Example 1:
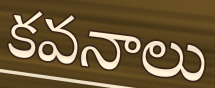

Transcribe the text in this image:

కవనాలు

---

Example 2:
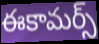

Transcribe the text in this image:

ఈకామర్స్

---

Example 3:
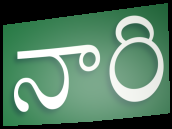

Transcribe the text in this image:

నారి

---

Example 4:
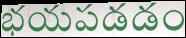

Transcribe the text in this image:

భయపడడం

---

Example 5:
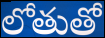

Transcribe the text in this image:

లోతుతో